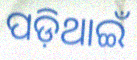
ପଡ଼ିଥାଇଁ